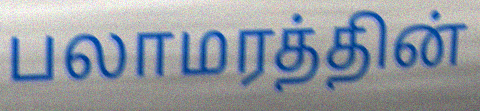
பலாமரத்தின்